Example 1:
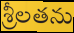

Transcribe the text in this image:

శ్రీలతను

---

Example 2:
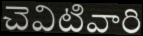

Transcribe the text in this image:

చెవిటివారి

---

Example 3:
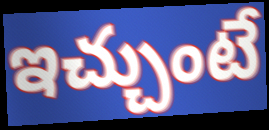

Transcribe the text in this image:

ఇచ్చుంటే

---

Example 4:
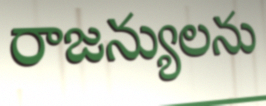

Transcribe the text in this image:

రాజన్యులను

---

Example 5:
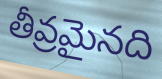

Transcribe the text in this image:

తీవ్రమైనది